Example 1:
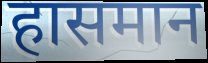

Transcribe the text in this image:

हासमान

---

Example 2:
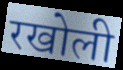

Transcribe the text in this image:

रखोली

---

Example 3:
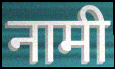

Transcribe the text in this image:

नामी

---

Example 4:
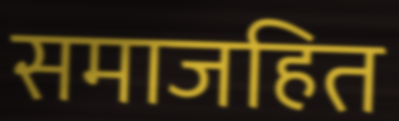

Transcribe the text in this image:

समाजहित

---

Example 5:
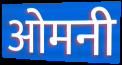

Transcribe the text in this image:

ओमनी